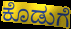
ಕೊಡುಗೆ